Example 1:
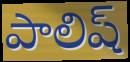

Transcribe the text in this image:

పాలిష్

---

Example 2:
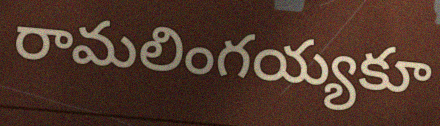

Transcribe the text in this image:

రామలింగయ్యకూ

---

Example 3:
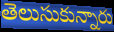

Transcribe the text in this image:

తెలుసుకున్నారు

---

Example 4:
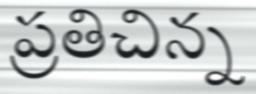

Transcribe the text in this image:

ప్రతిచిన్న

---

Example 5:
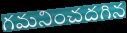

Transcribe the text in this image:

గమనించదగిన